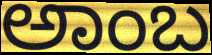
ಅಾಂಬ